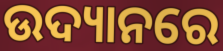
ଉଦ୍ୟାନରେ